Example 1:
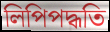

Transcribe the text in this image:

লিপিপদ্ধতি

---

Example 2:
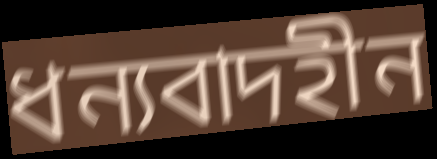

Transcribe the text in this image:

ধন্যবাদহীন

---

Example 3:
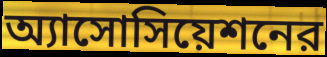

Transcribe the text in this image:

অ্যাসোসিয়েশনের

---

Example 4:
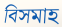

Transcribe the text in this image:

বিসমাহ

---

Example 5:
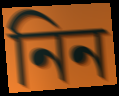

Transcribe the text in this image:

নিন